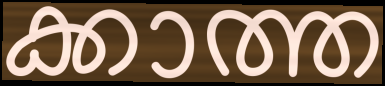
ക്കാത്ത